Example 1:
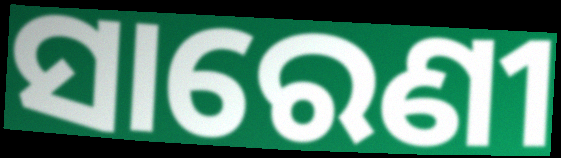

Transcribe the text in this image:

ସାରେଣୀ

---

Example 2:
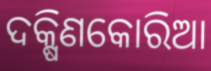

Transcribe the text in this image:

ଦକ୍ଷିଣକୋରିଆ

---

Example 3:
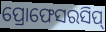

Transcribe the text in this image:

ପ୍ରୋଫେସରସିପ୍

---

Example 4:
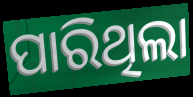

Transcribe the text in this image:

ପାରିଥିଲା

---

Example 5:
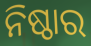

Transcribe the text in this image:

ନିଷ୍ଠାର